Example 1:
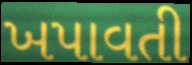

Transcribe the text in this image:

ખપાવતી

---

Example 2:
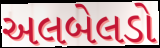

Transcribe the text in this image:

અલબેલડો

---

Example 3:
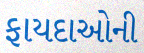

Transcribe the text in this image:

ફાયદાઓની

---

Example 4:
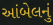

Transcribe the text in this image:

આંબેલનું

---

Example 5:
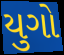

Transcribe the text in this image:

યુગો